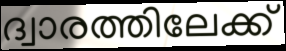
ദ്വാരത്തിലേക്ക്